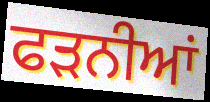
ਫੜਨੀਆਂ